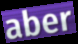
aber